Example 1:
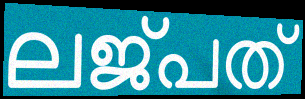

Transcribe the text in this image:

ലജ്പത്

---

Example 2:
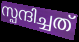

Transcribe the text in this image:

സ്പന്ദിച്ചത്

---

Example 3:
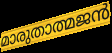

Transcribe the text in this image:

മാരുതാത്മജൻ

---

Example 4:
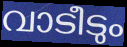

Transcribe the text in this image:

വാടീടും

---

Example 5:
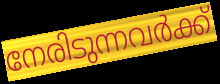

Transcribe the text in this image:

നേരിടുന്നവർക്ക്